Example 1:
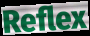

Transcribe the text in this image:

Reflex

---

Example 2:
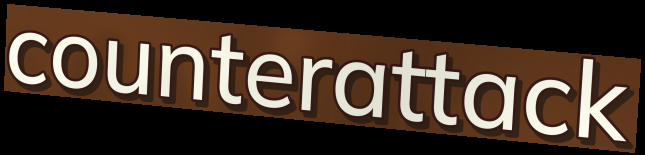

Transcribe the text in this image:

counterattack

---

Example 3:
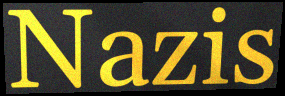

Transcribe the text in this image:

Nazis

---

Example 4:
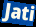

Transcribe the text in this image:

Jati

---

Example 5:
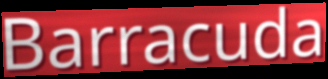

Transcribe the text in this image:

Barracuda